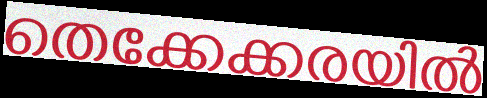
തെക്കേക്കരയിൽ